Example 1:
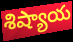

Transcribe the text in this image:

శిష్యాయ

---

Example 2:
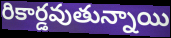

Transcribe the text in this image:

రికార్డవుతున్నాయి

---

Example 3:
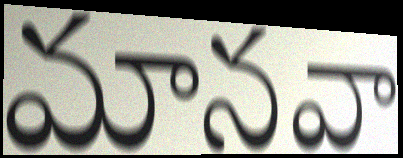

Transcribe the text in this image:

మానవా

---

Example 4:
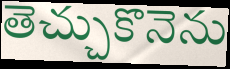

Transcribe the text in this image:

తెచ్చుకొనెను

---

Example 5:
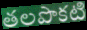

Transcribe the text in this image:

తలపొకటి